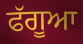
ਫੱਗੂਆ